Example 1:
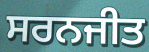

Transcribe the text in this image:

ਸਰਨਜੀਤ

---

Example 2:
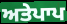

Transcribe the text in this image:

ਅਤੇਪਾਪ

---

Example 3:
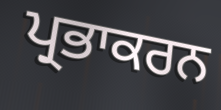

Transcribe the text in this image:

ਪ੍ਰਭਾਕਰਨ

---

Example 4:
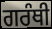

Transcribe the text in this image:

ਗਰੰਥੀ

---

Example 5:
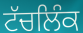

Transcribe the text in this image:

ਟੱਚਲਿੰਕ